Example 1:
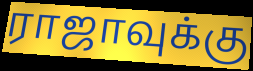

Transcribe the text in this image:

ராஜாவுக்கு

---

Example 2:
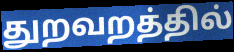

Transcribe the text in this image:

துறவறத்தில்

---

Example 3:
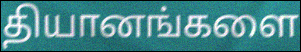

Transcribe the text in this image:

தியானங்களை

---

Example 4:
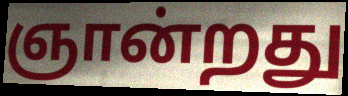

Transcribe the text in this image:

ஞான்றது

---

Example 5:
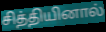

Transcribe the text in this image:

சித்தியினால்